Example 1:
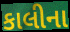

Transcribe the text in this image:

કાલીના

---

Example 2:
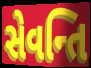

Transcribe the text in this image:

સેવન્તિ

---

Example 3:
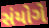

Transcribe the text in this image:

સંયોગે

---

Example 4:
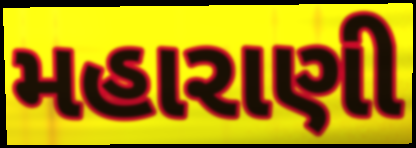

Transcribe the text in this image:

મહારાણી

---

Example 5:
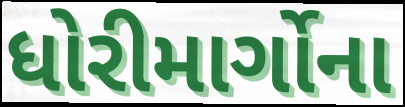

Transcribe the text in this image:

ધોરીમાર્ગોના